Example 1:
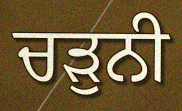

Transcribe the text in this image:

ਚੜੁਨੀ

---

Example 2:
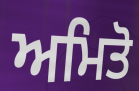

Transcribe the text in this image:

ਅਮਿਤੋ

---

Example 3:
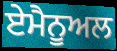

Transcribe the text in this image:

ਏਮੈਨੂਅਲ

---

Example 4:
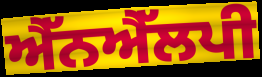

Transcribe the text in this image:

ਐੱਨਐੱਲਪੀ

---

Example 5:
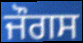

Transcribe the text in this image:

ਜੌਗਸ